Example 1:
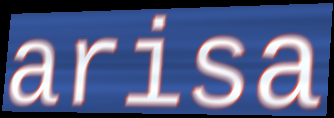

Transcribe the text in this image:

arisa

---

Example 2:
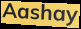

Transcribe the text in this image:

Aashay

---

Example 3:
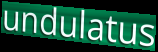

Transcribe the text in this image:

undulatus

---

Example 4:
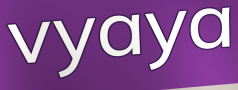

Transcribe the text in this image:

vyaya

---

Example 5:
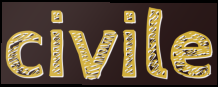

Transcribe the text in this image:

civile